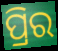
ପ୍ରିର